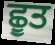
ਛੂਤ